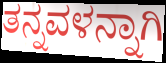
ತನ್ನವಳನ್ನಾಗಿ